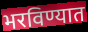
भरविण्यात